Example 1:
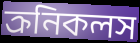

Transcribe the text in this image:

ক্রনিকলস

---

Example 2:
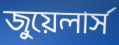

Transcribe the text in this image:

জুয়েলার্স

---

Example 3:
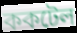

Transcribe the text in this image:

ককটেল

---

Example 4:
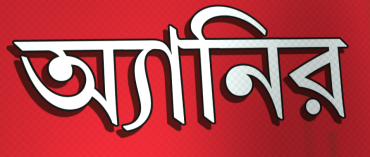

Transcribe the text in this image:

অ্যানির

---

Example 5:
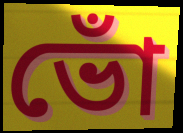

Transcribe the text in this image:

ভোঁ